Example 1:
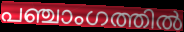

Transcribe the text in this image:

പഞ്ചാംഗത്തിൽ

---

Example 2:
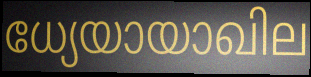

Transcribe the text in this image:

ധ്യേയായാഖില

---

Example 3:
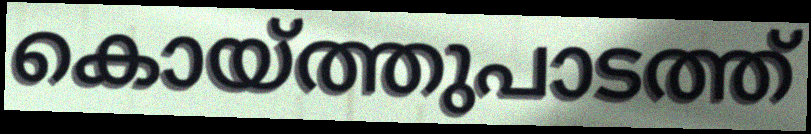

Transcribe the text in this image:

കൊയ്ത്തുപാടത്ത്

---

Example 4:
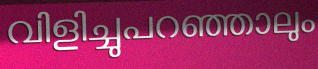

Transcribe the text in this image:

വിളിച്ചുപറഞ്ഞാലും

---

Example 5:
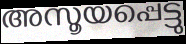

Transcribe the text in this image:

അസൂയപ്പെട്ടു